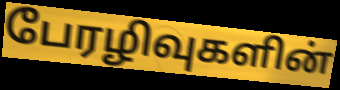
பேரழிவுகளின்